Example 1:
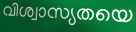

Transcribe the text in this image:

വിശ്വാസ്യതയെ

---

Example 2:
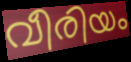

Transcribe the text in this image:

വീരിയം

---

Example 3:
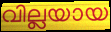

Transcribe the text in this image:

വില്ലയായ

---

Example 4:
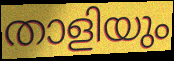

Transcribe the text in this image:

താളിയും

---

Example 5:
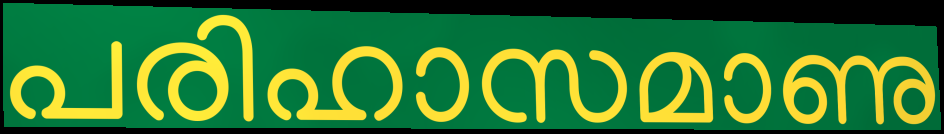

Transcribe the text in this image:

പരിഹാസമാണു